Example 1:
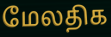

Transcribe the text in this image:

மேலதிக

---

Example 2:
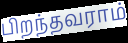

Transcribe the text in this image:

பிறந்தவராம்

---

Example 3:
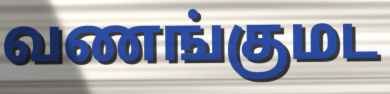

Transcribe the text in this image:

வணங்குமட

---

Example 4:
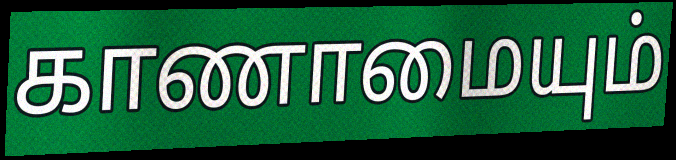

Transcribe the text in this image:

காணாமையும்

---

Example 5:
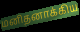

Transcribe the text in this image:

மனிதனாக்கிய